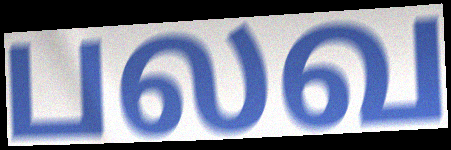
பலவ